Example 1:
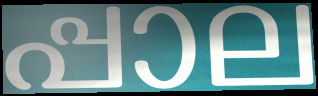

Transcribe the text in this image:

പ്പാല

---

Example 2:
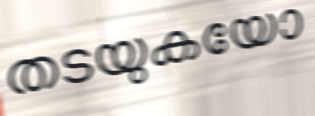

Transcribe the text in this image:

തടയുകയോ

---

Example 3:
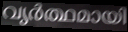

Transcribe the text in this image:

വ്യർത്ഥമായി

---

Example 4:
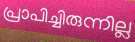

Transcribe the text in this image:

പ്രാപിച്ചിരുന്നില്ല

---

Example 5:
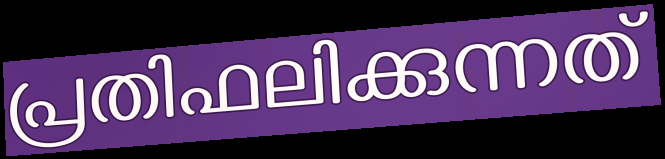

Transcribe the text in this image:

പ്രതിഫലിക്കുന്നത്